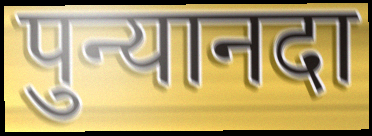
पुन्यानदा